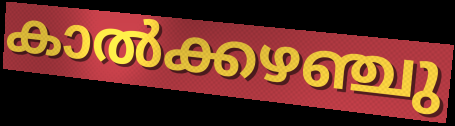
കാൽക്കഴഞ്ചു